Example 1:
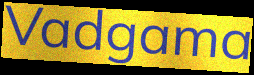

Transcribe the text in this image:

Vadgama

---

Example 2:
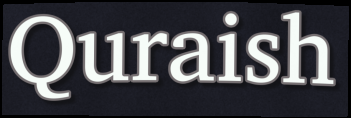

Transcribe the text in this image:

Quraish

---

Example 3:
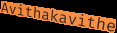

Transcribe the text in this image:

Avithakavithe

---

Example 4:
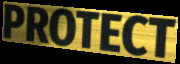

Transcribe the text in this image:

PROTECT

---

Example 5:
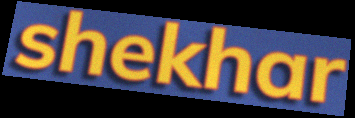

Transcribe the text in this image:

shekhar